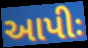
આપીઃ